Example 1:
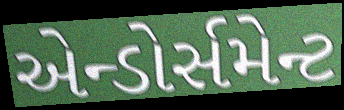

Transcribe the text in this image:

એન્ડોર્સમેન્ટ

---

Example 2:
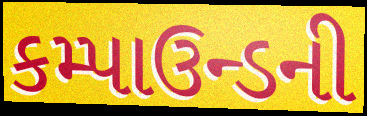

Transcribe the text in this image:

કમ્પાઉન્ડની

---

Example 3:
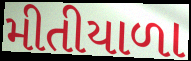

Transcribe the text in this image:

મીતીયાળા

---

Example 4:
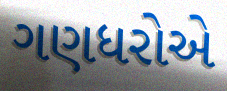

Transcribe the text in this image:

ગણધરોએ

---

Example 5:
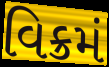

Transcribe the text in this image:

વિક્રમં